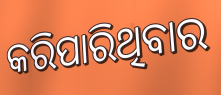
କରିପାରିଥିବାର